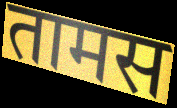
तामस